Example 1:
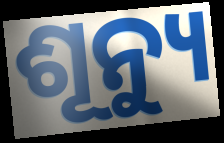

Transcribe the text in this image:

ଶୂନ୍ୟୁ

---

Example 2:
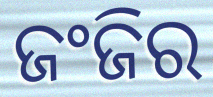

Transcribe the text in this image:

ଜଂଜିର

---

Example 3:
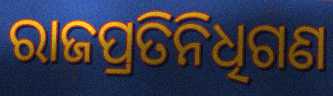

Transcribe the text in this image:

ରାଜପ୍ରତିନିଧିଗଣ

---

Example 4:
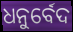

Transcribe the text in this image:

ଧନୁର୍ବେଦ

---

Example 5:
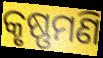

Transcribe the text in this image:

କୃଷ୍ଣମଣି